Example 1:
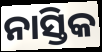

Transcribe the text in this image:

ନାସ୍ତିକ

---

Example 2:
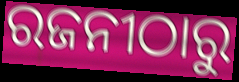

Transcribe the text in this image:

ରଜନୀଠାରୁ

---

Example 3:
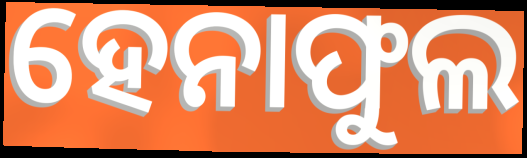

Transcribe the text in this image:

ହେନାଫୁଲ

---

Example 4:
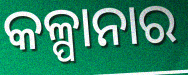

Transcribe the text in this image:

କଳ୍ପାନାର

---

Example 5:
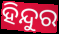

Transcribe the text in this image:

ହିନ୍ଦୁର